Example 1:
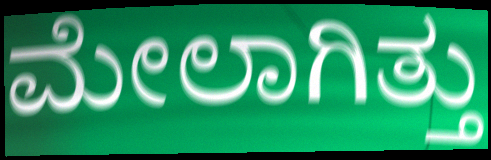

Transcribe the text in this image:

ಮೇಲಾಗಿತ್ತು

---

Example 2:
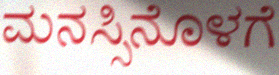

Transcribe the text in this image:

ಮನಸ್ಸಿನೊಳಗೆ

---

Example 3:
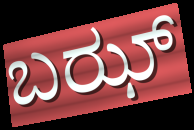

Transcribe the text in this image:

ಬಝ್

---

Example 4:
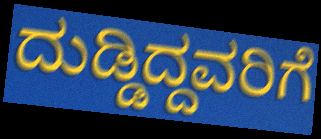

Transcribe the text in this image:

ದುಡ್ಡಿದ್ದವರಿಗೆ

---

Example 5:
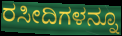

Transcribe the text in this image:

ರಸೀದಿಗಳನ್ನೂ